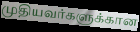
முதியவர்களுக்கான